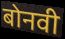
बोनवी